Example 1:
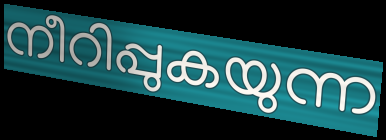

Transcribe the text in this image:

നീറിപ്പുകയുന്ന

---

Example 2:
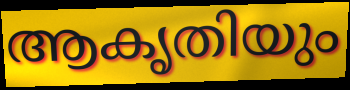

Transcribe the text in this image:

ആകൃതിയും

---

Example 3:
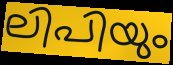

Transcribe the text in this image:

ലിപിയും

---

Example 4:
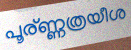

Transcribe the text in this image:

പൂര്ണ്ണത്രയീശ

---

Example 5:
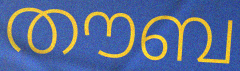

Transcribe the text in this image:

തൗബ